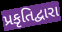
પ્રકૃતિદ્વારા